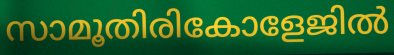
സാമൂതിരികോളേജിൽ